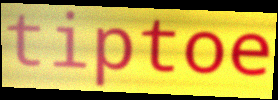
tiptoe